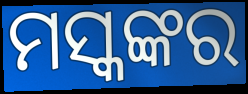
ମସ୍କଙ୍କର